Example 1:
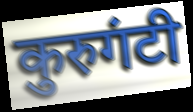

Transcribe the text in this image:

कुरुगंटी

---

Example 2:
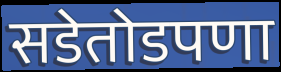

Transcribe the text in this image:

सडेतोडपणा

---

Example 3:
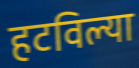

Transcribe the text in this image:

हटविल्या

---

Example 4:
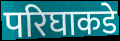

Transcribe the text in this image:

परिघाकडे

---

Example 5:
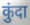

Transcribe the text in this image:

कुंदा